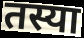
तस्या